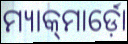
ମ୍ୟାକ୍‍ମାର୍ଡ଼ୋ